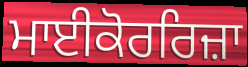
ਮਾਈਕੋਰਰਿਜ਼ਾ